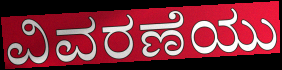
ವಿವರಣೆಯು